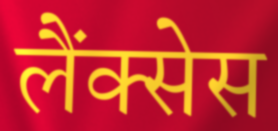
लैंक्सेस